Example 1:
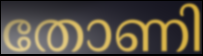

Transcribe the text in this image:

തോണി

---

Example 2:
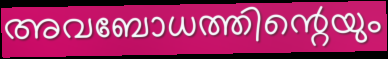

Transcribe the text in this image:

അവബോധത്തിന്റെയും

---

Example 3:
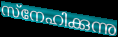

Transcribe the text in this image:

സ്‌നേഹിക്കുന്നു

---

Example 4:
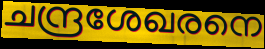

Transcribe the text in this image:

ചന്ദ്രശേഖരനെ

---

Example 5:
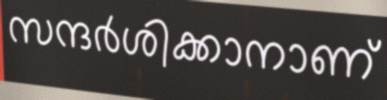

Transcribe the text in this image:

സന്ദർശിക്കാനാണ്